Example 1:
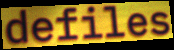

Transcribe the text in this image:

defiles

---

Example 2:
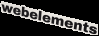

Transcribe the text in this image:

webelements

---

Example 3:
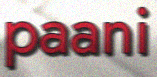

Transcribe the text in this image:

paani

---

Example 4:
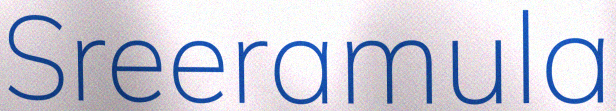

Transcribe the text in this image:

Sreeramula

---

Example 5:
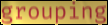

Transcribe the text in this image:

grouping